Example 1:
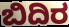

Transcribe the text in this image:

ಬಿದಿರ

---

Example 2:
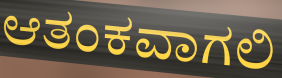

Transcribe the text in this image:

ಆತಂಕವಾಗಲಿ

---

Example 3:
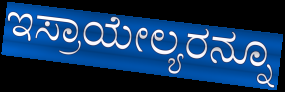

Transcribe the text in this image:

ಇಸ್ರಾಯೇಲ್ಯರನ್ನೂ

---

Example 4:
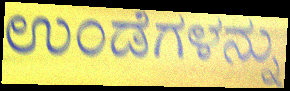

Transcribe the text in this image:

ಉಂಡೆಗಳನ್ನು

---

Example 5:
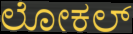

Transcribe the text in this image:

ಲೋಕಲ್